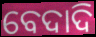
ବେଦାଦି